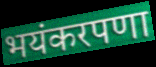
भयंकरपणा